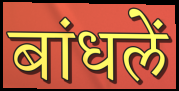
बांधलें